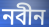
নবীন